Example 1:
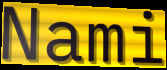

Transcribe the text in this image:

Nami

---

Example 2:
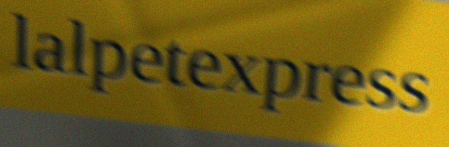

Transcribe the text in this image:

lalpetexpress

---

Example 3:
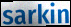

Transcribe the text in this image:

sarkin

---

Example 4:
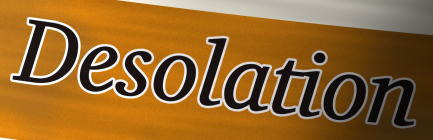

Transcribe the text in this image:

Desolation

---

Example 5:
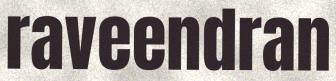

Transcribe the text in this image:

raveendran